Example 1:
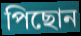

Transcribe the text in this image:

পিছোন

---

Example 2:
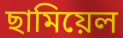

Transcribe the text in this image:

ছামিয়েল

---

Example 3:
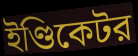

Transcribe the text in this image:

ইণ্ডিকেটর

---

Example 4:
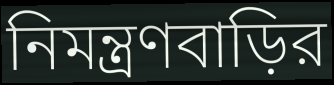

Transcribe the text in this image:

নিমন্ত্রণবাড়ির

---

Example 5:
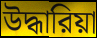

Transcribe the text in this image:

উদ্ধারিয়া